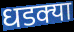
धडक्या